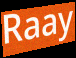
Raay